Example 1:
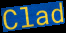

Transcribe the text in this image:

Clad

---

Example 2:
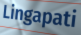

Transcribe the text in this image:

Lingapati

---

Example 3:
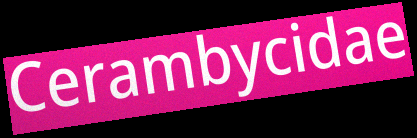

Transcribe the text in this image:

Cerambycidae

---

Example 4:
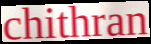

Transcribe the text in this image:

chithran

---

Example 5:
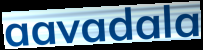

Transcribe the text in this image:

aavadala